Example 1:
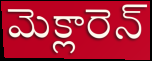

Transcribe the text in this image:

మెక్లారెన్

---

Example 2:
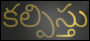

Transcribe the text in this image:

కల్పిస్తు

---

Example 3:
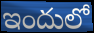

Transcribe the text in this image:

ఇందులో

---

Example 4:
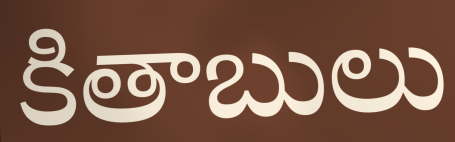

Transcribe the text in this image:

కితాబులు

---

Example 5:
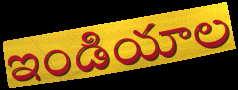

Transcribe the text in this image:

ఇండియాల